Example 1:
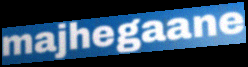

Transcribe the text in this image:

majhegaane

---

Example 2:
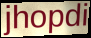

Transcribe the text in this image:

jhopdi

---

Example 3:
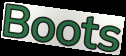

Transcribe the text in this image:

Boots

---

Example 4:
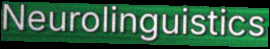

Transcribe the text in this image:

Neurolinguistics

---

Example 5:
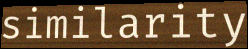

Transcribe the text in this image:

similarity